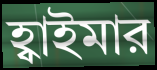
হ্বাইমার